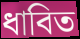
ধাবিত